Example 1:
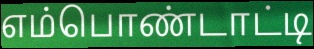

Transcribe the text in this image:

எம்பொண்டாட்டி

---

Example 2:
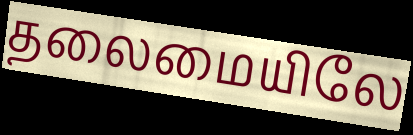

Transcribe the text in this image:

தலைமையிலே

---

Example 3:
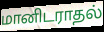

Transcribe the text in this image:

மானிடராதல்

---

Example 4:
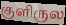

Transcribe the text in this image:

குளிருல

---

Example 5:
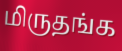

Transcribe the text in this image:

மிருதங்க